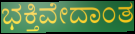
ಭಕ್ತಿವೇದಾಂತ